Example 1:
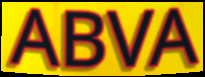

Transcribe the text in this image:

ABVA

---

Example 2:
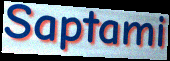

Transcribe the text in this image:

Saptami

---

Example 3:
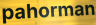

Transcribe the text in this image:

pahorman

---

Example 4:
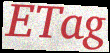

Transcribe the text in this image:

ETag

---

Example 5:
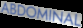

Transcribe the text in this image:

ABDOMINAL